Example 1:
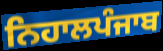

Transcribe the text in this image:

ਨਿਹਾਲਪੰਜਾਬ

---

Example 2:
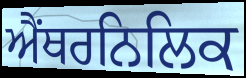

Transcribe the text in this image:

ਐਂਥਰਨਿਲਿਕ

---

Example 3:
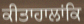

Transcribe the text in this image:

ਕੀਤਾਹਾਲਾਂਕਿ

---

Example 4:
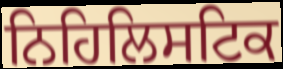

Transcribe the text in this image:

ਨਿਹਿਲਿਸਟਿਕ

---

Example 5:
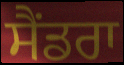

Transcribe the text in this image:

ਸੈਂਡਰਾ